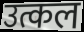
उत्कल